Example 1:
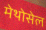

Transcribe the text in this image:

मेथोसेल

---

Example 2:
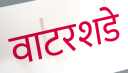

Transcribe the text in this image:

वाटरशडे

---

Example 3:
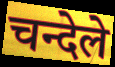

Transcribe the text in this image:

चन्देले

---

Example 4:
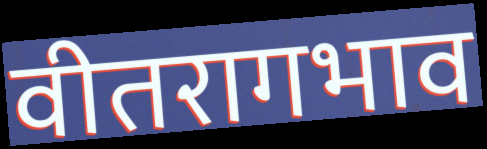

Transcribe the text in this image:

वीतरागभाव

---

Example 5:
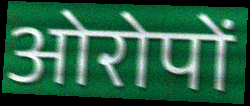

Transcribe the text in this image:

ओरोपों